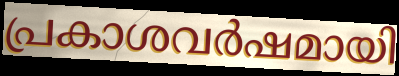
പ്രകാശവർഷമായി